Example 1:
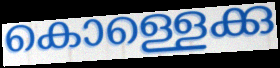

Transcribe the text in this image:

കൊള്ളെക്കു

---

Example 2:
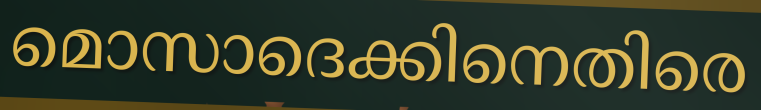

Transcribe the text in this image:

മൊസാദെക്കിനെതിരെ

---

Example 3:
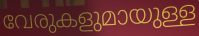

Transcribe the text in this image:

വേരുകളുമായുള്ള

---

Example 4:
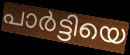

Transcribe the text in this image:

പാർട്ടിയെ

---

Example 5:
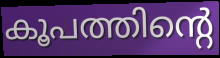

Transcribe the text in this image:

കൂപത്തിന്റെ